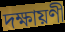
দক্ষায়ণী